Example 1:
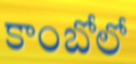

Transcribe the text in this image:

కాంబోలో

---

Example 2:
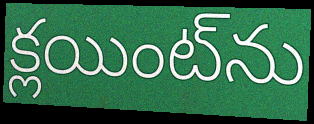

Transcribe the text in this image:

క్లయింట్‌ను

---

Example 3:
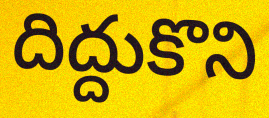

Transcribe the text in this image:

దిద్దుకొని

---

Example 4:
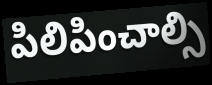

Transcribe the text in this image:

పిలిపించాల్సి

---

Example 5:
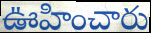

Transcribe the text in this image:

ఊహించారు